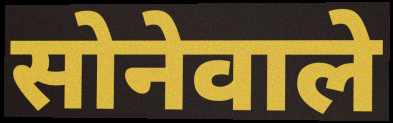
सोनेवाले